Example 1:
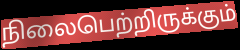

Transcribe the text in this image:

நிலைபெற்றிருக்கும்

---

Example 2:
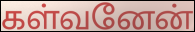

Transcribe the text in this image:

கள்வனேன்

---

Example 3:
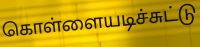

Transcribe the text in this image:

கொள்ளையடிச்சுட்டு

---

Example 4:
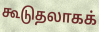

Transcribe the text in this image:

கூடுதலாகக்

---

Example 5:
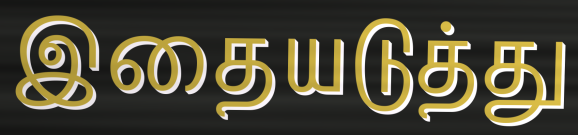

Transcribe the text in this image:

இதையடுத்து